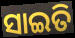
ସାଇତି